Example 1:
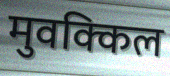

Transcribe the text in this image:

मुवक्किल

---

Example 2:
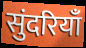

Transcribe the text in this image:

सुंदरियाँ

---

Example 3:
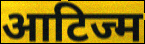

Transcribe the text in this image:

आटिज्म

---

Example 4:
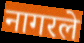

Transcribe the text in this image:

नागरले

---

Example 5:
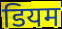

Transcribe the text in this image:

डियम